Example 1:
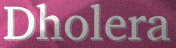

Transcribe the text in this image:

Dholera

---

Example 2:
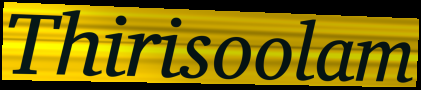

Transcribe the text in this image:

Thirisoolam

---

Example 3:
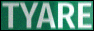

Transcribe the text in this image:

TYARE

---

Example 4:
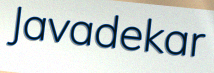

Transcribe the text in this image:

Javadekar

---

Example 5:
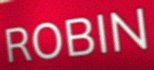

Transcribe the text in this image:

ROBIN